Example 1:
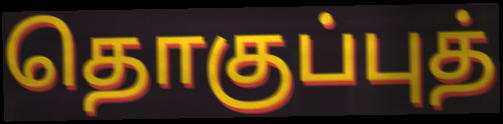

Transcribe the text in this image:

தொகுப்புத்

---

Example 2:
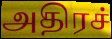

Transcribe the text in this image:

அதிரச்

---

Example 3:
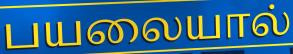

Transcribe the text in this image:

பயலையால்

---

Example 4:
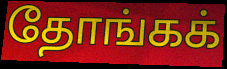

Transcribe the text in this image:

தோங்கக்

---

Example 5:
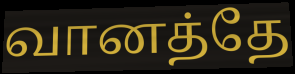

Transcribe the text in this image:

வானத்தே